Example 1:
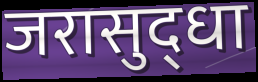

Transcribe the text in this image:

जरासुद्धा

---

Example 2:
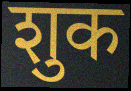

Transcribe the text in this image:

शुक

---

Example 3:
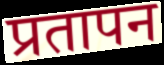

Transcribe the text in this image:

प्रतापन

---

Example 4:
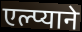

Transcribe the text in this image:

एल्प्याने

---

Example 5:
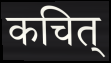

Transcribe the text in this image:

कचित्